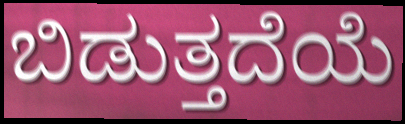
ಬಿಡುತ್ತದೆಯೆ